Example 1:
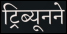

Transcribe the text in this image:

ट्रिब्यूनने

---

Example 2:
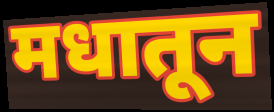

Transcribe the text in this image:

मधातून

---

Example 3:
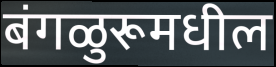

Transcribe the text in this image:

बंगळुरूमधील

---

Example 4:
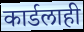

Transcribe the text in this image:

कार्डलाही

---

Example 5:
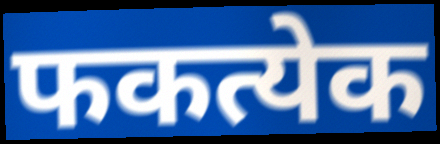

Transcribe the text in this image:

फकत्येक